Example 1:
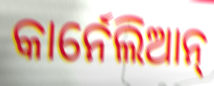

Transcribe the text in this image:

କାର୍ନେଲିଆନ୍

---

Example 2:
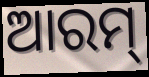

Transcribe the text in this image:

ଆରମ୍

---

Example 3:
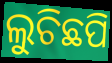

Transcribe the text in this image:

ଲୁଚିଛପି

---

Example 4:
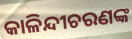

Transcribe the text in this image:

କାଳିନ୍ଦୀଚରଣଙ୍କ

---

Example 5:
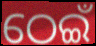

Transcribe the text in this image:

ଠେଇଁ